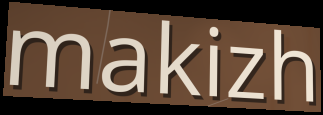
makizh